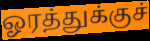
ஓரத்துக்குச்